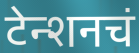
टेन्शनचं